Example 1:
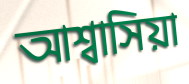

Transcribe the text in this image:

আশ্বাসিয়া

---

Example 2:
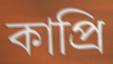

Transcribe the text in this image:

কাপ্রি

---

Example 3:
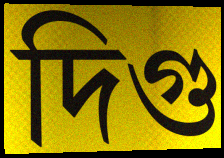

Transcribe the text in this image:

দিগু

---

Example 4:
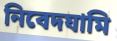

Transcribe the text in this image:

নিবেদযামি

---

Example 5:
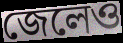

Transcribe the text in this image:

জেলেও